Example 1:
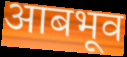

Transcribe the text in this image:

आबभूव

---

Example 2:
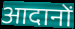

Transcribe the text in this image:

आदानों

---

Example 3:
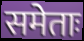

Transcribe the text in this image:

समेताः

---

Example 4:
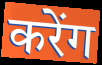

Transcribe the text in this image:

करेंग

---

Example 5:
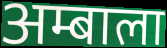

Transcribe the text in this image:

अम्‍बाला